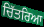
ਚਿੱਤਰਿਆ